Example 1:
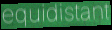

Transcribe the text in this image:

equidistant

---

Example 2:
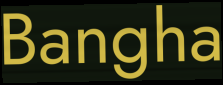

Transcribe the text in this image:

Bangha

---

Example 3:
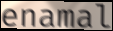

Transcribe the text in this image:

enamal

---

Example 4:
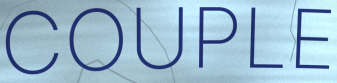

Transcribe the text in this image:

COUPLE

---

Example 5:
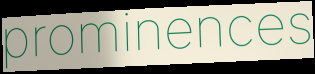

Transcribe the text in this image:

prominences